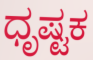
ಧೃಷ್ಟಕ